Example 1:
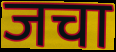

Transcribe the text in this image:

जचा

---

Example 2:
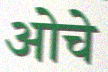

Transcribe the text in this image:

ओचे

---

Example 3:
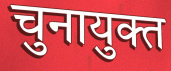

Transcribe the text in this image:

चुनायुक्त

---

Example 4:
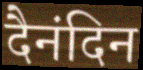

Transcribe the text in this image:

दैनंदिन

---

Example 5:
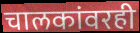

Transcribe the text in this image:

चालकांवरही